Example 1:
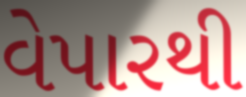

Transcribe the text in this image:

વેપારથી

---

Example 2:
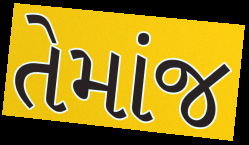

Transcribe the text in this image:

તેમાંજ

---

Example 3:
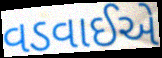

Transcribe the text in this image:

વડવાઈએ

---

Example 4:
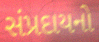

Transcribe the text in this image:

સંપ્રદાયનો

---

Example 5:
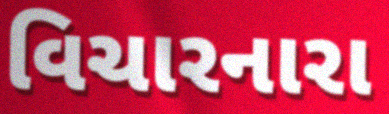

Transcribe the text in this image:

વિચારનારા